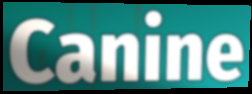
Canine